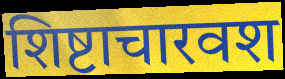
शिष्टाचारवश